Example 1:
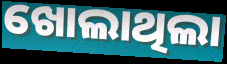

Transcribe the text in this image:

ଖୋଲାଥିଲା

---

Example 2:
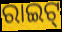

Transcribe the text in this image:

ରାଇଟ୍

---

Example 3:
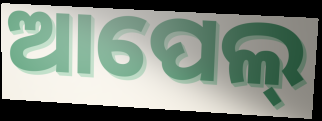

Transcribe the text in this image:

ଆପେଲ୍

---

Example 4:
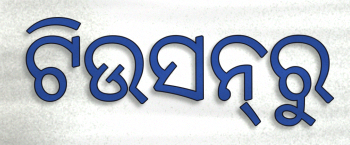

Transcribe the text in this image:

ଟିଉସନ୍‌ରୁ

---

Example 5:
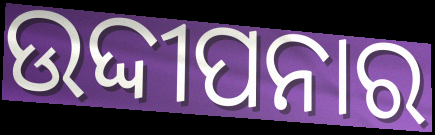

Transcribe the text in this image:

ଉଦ୍ଦୀପନାର